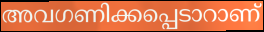
അവഗണിക്കപ്പെടാറാണ്